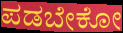
ಪಡಬೇಕೋ